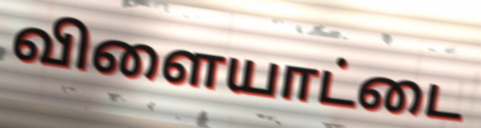
விளையாட்டை